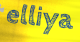
elliya